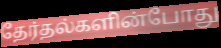
தேர்தல்களின்போது